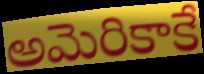
అమెరికాకే